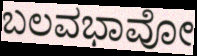
ಬಲವಭಾವೋ